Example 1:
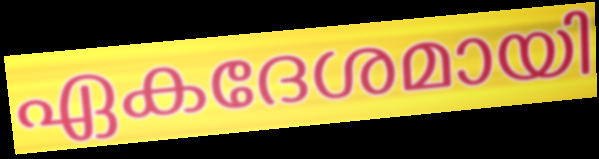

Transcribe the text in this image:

ഏകദേശമായി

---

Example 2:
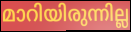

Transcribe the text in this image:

മാറിയിരുന്നില്ല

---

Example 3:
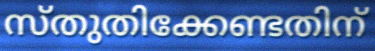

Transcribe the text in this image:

സ്തുതിക്കേണ്ടതിന്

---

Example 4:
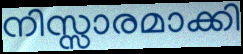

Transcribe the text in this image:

നിസ്സാരമാക്കി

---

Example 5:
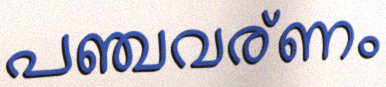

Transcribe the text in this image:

പഞ്ചവര്ണം